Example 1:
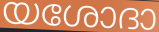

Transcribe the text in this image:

യശോദാ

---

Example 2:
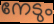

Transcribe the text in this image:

നേടും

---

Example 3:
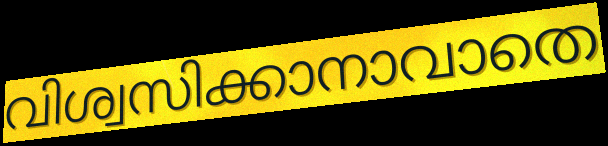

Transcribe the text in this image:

വിശ്വസിക്കാനാവാതെ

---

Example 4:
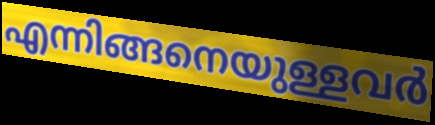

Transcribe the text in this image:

എന്നിങ്ങനെയുള്ളവർ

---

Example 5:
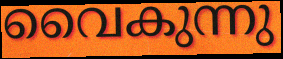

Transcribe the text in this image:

വൈകുന്നു